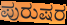
ಪುರುಷರ